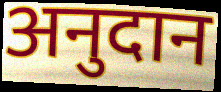
अनुदान